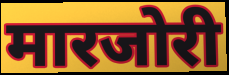
मारजोरी